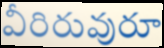
వీరిరువురూ